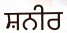
ਸ਼ਨੀਰ